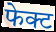
फेक्ट